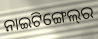
ନାଇଟିଙ୍ଗେଲ୍‌ର